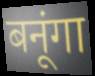
बनूंगा